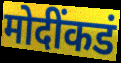
मोदींकडं